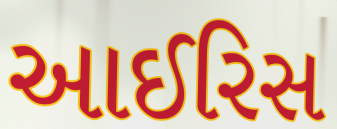
આઈરિસ